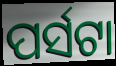
ପର୍ସଟା